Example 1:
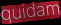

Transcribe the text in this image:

quidam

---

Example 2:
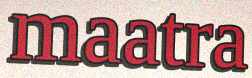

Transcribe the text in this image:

maatra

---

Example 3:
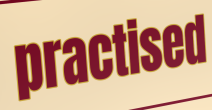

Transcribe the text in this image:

practised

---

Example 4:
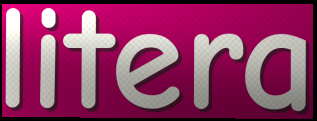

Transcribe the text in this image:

litera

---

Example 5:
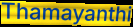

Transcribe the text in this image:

Thamayanthi